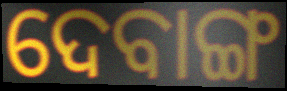
ଦେବାଙ୍ଗ